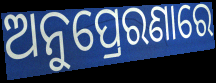
ଅନୁପ୍ରେରଣାରେ